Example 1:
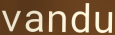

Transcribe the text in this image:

vandu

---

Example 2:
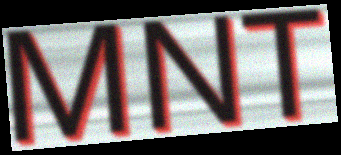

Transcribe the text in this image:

MNT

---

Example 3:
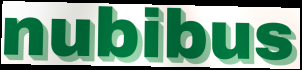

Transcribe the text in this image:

nubibus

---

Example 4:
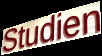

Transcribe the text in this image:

Studien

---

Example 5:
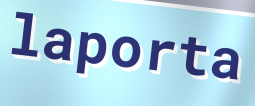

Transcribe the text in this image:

laporta